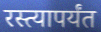
रस्त्यापर्यंत